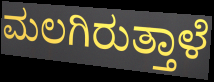
ಮಲಗಿರುತ್ತಾಳೆ